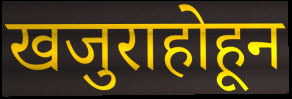
खजुराहोहून